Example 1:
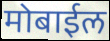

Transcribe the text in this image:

मोबाईल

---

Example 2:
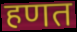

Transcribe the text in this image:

हणत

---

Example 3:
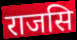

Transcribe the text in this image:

राजसि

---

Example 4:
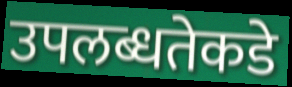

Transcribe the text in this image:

उपलब्धतेकडे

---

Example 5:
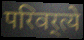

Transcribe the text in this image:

परिवर्त्ये